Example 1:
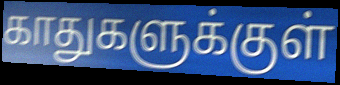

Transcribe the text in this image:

காதுகளுக்குள்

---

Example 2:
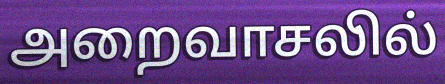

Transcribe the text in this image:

அறைவாசலில்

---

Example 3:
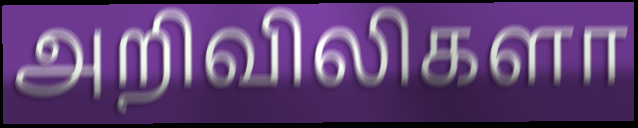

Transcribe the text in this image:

அறிவிலிகளா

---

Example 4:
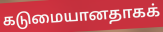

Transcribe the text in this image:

கடுமையானதாகக்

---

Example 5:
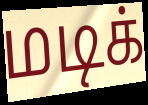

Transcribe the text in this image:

மடிக்